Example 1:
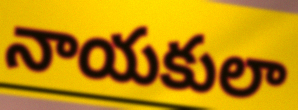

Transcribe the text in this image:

నాయకులా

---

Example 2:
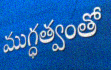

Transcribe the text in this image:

ముగ్ధత్వంతో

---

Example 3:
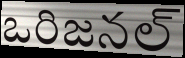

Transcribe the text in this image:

ఒరిజనల్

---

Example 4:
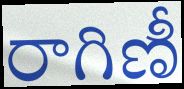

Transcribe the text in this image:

రాగిణీ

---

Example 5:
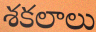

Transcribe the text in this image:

శకలాలు